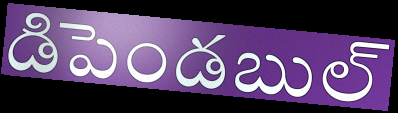
డిపెండబుల్